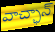
వాచ్ఛాన్